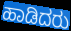
ಹಾಡಿದರು